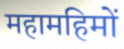
महामहिमों